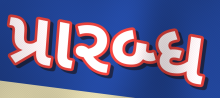
પ્રારબ્ધ